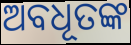
ଅବଧୂତଙ୍କ